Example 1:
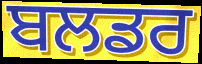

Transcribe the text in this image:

ਬਲਡਰ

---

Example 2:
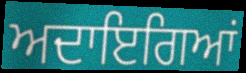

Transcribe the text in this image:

ਅਦਾਇਗਿਆਂ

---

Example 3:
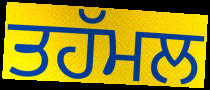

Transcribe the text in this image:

ਤਹੱਮਲ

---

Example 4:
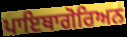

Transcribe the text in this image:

ਪਾਇਥਾਗੋਰਿਅਨ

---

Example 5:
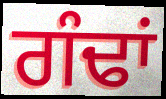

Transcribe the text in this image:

ਗੰਢਾਂ